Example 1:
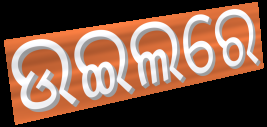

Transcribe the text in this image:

ଉଇଲରେ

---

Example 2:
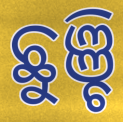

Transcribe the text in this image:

ଛୁଞ୍ଚି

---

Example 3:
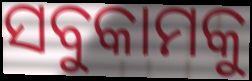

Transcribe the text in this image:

ସବୁକାମକୁ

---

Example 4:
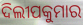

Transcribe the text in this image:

ଦିଲୀପକୁମାର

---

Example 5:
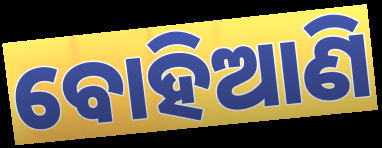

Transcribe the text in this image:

ବୋହିଆଣି